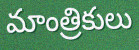
మాంత్రికులు